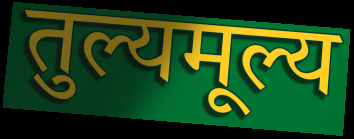
तुल्यमूल्य